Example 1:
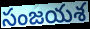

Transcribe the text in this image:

సంజయశ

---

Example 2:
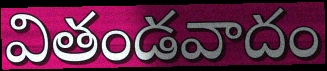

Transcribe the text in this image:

వితండవాదం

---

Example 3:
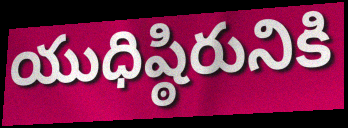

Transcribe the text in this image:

యుధిష్ఠిరునికి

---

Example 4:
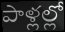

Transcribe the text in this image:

పాళ్లల్లో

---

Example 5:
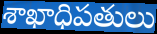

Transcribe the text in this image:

శాఖాధిపతులు